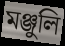
মঞ্জুলি